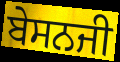
ਬੇਸਨਜੀ